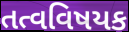
તત્વવિષયક